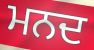
ਮਨਦ